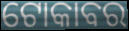
ଟୋକାବର